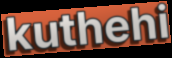
kuthehi